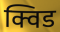
क्विड